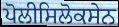
ਪੋਲੀਸਿਲੋਕਸੇਨ